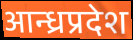
आन्ध्रप्रदेश